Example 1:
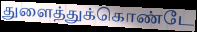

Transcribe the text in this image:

துளைத்துக்கொண்டே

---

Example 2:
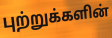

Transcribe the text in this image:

புற்றுக்களின்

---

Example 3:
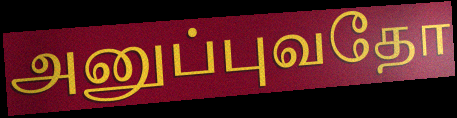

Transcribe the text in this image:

அனுப்புவதோ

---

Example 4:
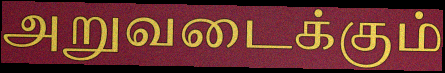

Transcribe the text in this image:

அறுவடைக்கும்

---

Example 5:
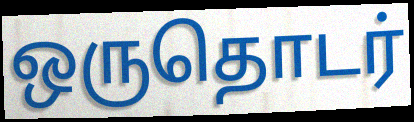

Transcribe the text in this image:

ஒருதொடர்